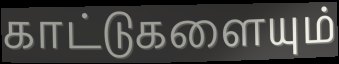
காட்டுகளையும்